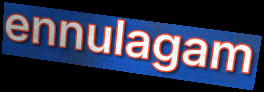
ennulagam